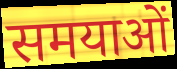
समयाओं